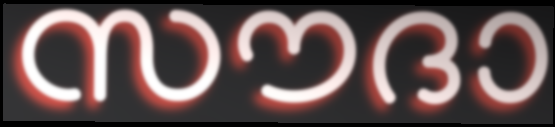
സൗദാ